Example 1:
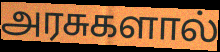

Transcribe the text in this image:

அரசுகளால்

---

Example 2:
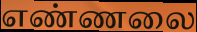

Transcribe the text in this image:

எண்ணலை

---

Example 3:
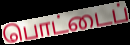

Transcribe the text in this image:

பொட்டைப்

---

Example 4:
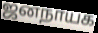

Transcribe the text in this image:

ஜனநாயக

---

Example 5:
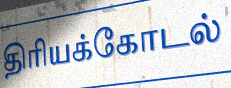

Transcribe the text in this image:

திரியக்கோடல்